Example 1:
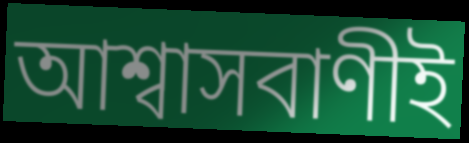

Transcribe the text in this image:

আশ্বাসবাণীই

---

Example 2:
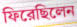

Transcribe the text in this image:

ফিরেছিলেন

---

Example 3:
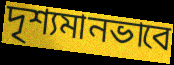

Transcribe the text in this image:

দৃশ্যমানভাবে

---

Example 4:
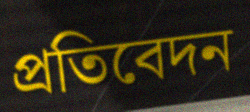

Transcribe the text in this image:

প্রতিবেদন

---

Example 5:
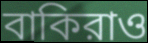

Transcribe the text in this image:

বাকিরাও